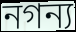
নগন্য